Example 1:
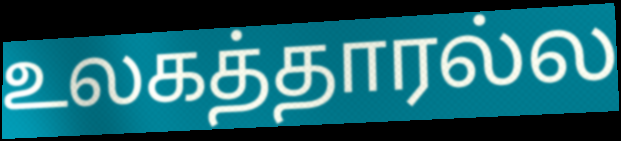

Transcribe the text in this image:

உலகத்தாரல்ல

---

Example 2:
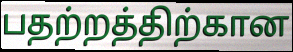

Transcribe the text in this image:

பதற்றத்திற்கான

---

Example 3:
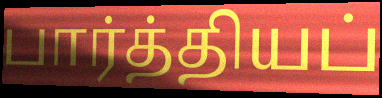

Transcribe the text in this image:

பார்த்தியப்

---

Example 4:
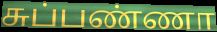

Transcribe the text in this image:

சுப்பண்ணா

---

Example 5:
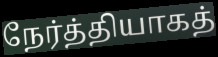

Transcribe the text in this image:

நேர்த்தியாகத்